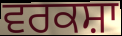
ਵਰਕਸ਼ਾ